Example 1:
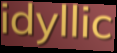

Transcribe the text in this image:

idyllic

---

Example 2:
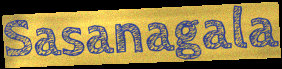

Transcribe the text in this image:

Sasanagala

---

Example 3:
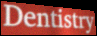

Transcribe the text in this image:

Dentistry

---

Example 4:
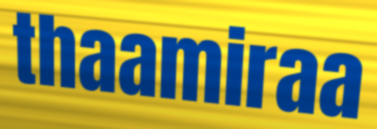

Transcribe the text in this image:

thaamiraa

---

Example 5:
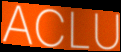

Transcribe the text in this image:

ACLU